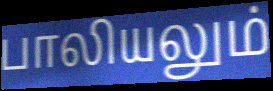
பாலியலும்